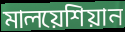
মালয়েশিয়ান